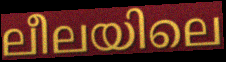
ലീലയിലെ